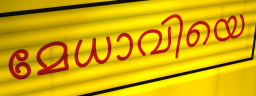
മേധാവിയെ